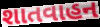
શાતવાહન